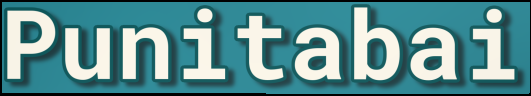
Punitabai